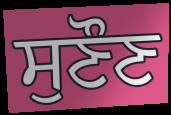
ਸੁਣੌਣ